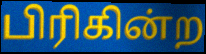
பிரிகின்ற